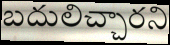
బదులిచ్చారని